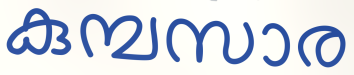
കുമ്പസാര